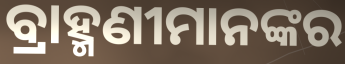
ବ୍ରାହ୍ମଣୀମାନଙ୍କର